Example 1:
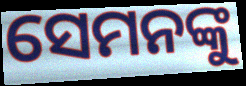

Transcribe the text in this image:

ସେମନଙ୍କୁ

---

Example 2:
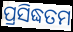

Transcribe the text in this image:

ପ୍ରସିଦ୍ଧତମ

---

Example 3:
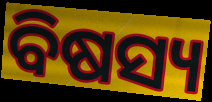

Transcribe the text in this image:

ବିଷସ୍ୟ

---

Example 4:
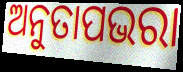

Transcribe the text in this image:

ଅନୁତାପଭରା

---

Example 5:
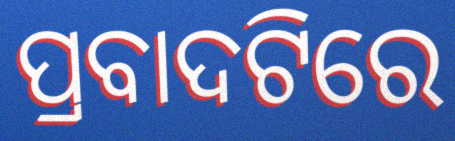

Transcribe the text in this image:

ପ୍ରବାଦଟିରେ